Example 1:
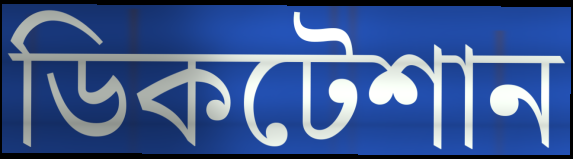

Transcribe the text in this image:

ডিকটেশান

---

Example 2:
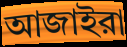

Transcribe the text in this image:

আজাইরা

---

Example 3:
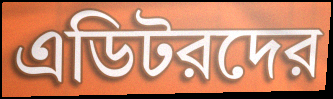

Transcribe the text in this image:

এডিটরদের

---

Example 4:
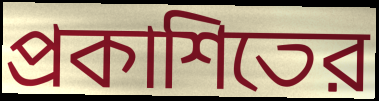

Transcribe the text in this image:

প্রকাশিতের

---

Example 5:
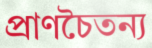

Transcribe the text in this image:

প্রাণচৈতন্য